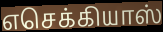
எசெக்கியாஸ்